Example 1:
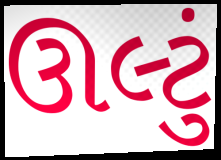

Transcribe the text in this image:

ઊલ્ટું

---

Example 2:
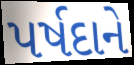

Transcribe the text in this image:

પર્ષદાને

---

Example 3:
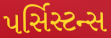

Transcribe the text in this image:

પર્સિસ્ટન્સ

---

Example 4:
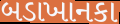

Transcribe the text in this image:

બડાખાનકા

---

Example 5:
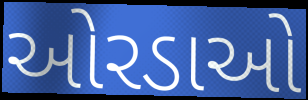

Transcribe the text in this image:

ઓરડાઓ